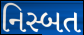
નિસ્બત